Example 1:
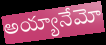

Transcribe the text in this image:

అయ్యానేమో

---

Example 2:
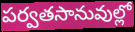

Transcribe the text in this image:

పర్వతసానువుల్లో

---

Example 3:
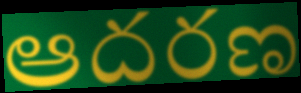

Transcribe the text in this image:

ఆదరణ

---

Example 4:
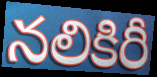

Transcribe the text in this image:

నలికిరీ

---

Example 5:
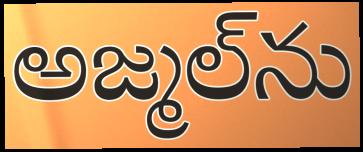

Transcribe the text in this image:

అజ్మల్‌ను